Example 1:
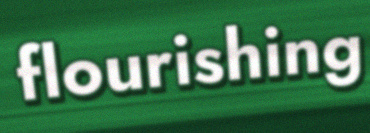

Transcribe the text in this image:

flourishing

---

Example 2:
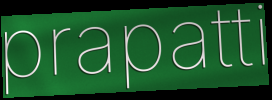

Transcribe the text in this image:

prapatti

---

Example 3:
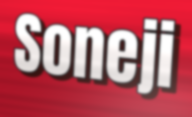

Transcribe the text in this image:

Soneji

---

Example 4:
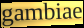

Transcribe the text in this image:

gambiae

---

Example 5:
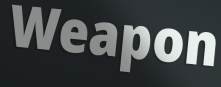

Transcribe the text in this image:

Weapon